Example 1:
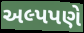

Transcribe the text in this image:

અલ્પપણે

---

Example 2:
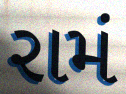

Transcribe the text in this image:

રામં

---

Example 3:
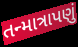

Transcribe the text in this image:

તન્માત્રાપણું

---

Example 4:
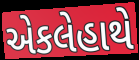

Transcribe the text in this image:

એકલેહાથે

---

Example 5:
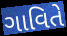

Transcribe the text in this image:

ગાવિતે